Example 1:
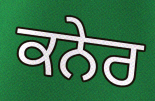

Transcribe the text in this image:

ਕਨੇਰ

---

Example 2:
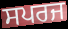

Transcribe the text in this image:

ਸਪਰਜ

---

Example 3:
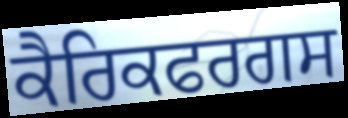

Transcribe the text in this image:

ਕੈਰਿਕਫਰਗਸ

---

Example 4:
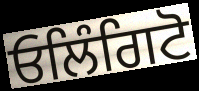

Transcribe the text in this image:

ਓਲਿੰਗਿਟੋ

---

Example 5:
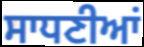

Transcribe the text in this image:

ਸਾਧਣੀਆਂ